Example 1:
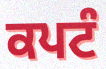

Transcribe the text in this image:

ਕਪਟੰ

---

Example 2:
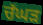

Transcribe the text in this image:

ਚੱਘੜ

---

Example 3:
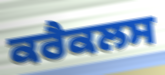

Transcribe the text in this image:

ਕਰੈਕਲਸ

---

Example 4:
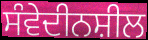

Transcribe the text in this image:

ਸੰਵੇਦੀਨਸ਼ੀਲ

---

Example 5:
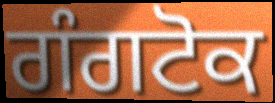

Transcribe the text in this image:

ਗੰਗਟੋਕ